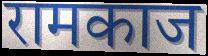
रामकाज